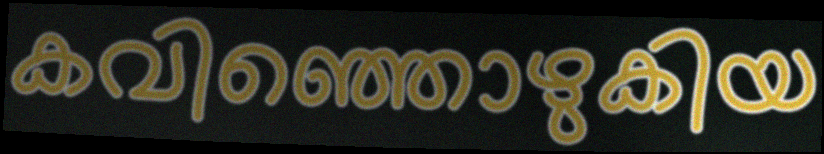
കവിഞ്ഞൊഴുകിയ